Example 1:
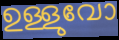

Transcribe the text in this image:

ഉള്ളുവോ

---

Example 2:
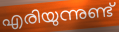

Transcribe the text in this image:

എരിയുന്നുണ്ട്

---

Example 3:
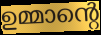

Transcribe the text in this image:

ഉമ്മാന്റെ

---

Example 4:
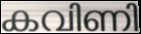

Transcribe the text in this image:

കവിണി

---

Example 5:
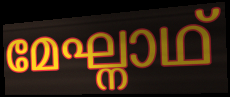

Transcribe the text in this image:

മേഘ്നാഥ്